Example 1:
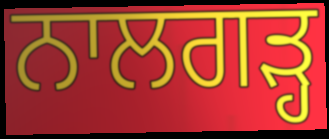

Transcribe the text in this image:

ਨਾਲਗੜ੍ਹ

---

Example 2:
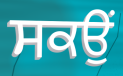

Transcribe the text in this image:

ਸਕਉਂ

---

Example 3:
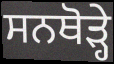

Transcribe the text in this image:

ਸਨਥੋੜ੍ਹੇ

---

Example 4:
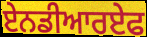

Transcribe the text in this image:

ਏਨਡੀਆਰਏਫ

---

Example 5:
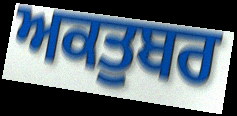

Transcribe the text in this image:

ਅਕਤੁਬਰ